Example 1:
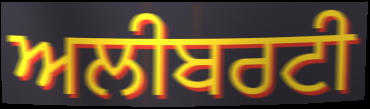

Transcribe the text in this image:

ਅਲੀਬਰਟੀ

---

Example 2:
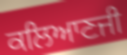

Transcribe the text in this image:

ਕਲਿਆਣਜੀ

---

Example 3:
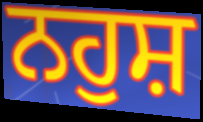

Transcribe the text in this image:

ਨਹੁਸ਼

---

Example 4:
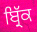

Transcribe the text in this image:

ਬ੍ਰਿੱਕ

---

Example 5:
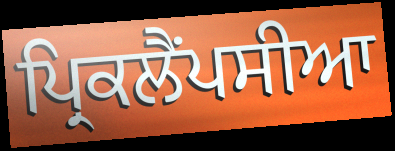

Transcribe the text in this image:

ਪ੍ਰਿਕਲੈਂਪਸੀਆ